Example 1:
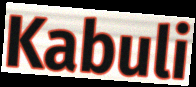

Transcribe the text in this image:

Kabuli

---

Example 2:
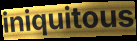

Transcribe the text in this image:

iniquitous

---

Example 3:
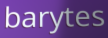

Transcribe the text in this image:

barytes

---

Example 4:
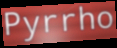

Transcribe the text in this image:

Pyrrho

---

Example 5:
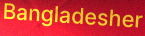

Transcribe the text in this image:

Bangladesher